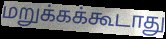
மறுக்கக்கூடாது